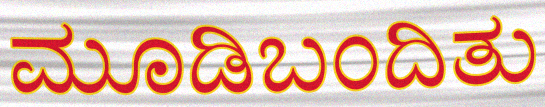
ಮೂಡಿಬಂದಿತು